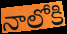
నాలోకి